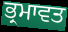
ਭ੍ਰਮਾਵਤ